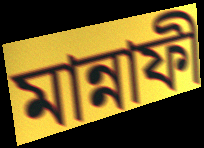
মান্নাফী